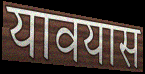
यावयास